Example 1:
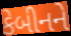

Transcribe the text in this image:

કેબીનને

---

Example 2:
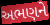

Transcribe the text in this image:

અભણને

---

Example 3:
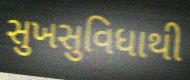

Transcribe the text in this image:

સુખસુવિધાથી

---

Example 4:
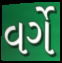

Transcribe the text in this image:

વર્ગે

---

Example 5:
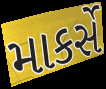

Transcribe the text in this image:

માકર્સે